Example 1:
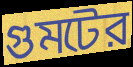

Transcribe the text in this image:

গুমটের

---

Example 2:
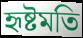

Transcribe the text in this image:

হৃষ্টমতি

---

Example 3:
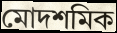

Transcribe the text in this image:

মোদশমিক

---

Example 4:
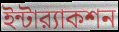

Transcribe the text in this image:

ইন্টার‍্যাকশন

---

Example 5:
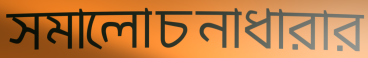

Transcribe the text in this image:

সমালোচনাধারার